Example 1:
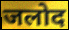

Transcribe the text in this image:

जलोद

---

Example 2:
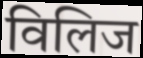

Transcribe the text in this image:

विलिज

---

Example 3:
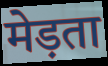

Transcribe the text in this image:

मेड़ता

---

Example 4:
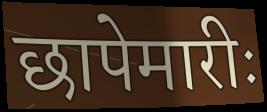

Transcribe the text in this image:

छापेमारीः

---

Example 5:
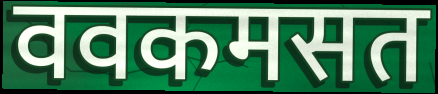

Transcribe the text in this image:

ववकमसत